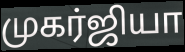
முகர்ஜியா